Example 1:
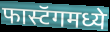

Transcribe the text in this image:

फास्टॅगमध्ये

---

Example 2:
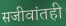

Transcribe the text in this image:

सजीवांतही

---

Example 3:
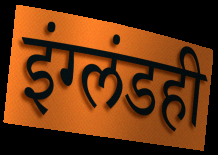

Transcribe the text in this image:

इंग्लंडही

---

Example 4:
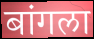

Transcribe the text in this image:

बांगला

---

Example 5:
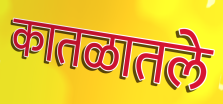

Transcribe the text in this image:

कातळातले